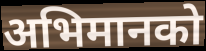
अभिमानको